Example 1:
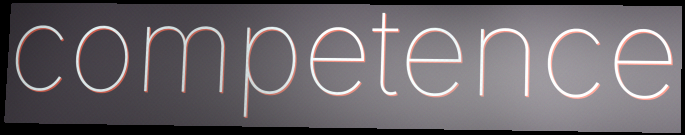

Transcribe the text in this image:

competence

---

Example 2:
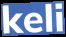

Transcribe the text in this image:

keli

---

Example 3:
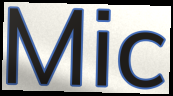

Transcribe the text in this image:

Mic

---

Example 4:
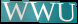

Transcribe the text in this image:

WWU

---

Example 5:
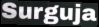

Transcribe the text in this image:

Surguja